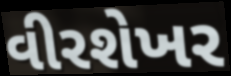
વીરશેખર